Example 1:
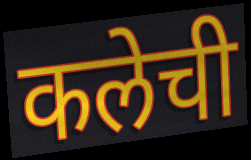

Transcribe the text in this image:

कलेची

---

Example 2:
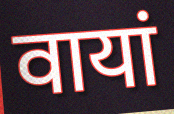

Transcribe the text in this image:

वायां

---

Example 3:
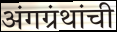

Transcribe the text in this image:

अंगग्रंथांची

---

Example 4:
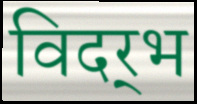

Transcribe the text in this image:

विदर्भ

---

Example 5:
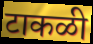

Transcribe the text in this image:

टाकळी